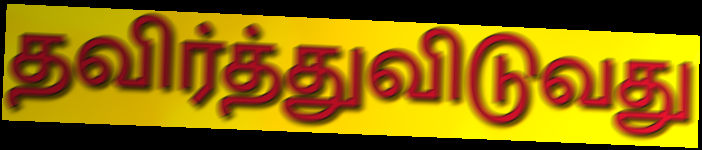
தவிர்த்துவிடுவது